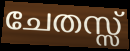
ചേതസ്സ്